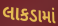
લાકડામાં